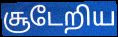
சூடேறிய